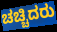
ಚಚ್ಚಿದರು